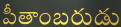
పీతాంబరుడు